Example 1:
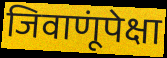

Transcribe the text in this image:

जिवाणूंपेक्षा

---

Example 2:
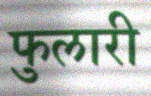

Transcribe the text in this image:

फुलारी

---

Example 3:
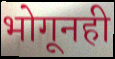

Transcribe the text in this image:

भोगूनही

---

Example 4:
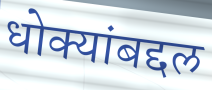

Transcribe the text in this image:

धोक्यांबद्दल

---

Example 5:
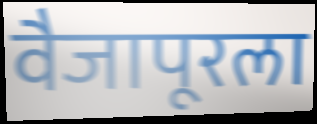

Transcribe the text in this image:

वैजापूरला